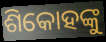
ଶିକୋହଙ୍କୁ